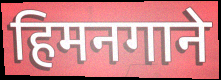
हिमनगाने